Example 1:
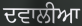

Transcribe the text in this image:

ਦਵਾਲੀਆ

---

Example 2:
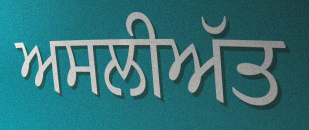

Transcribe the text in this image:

ਅਸਲੀਅੱਤ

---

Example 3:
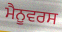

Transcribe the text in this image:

ਮੈਨੂਵਰਸ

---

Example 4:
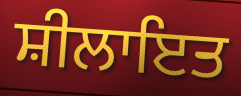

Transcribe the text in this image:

ਸ਼ੀਲਾਇਤ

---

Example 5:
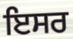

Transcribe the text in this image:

ਇਸਰ